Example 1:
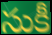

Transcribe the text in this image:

సుకీ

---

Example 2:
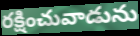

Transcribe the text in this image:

రక్షించువాడును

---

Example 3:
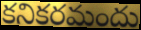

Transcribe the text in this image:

కనికరమందు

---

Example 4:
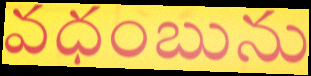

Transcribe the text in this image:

వధంబును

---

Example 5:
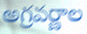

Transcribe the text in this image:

అగ్రవర్ణాల